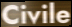
Civile